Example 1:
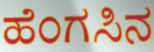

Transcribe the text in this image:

ಹೆಂಗಸಿನ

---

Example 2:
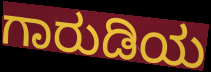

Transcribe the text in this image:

ಗಾರುಡಿಯ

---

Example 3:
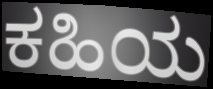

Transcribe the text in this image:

ಕಹಿಯ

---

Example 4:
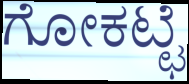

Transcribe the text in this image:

ಗೋಕಟ್ಟೆ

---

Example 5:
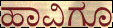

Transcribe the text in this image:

ಹಾವಿಗೂ